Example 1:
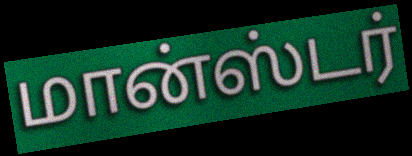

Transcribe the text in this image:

மான்ஸ்டர்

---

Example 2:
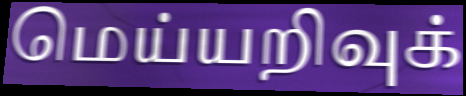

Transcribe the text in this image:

மெய்யறிவுக்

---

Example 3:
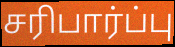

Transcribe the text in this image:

சரிபார்ப்பு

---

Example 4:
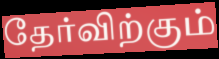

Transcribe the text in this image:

தேர்விற்கும்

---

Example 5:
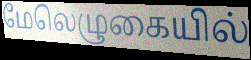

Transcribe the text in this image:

மேலெழுகையில்